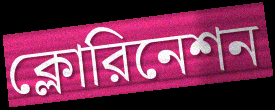
ক্লোরিনেশন